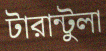
টারান্টুলা